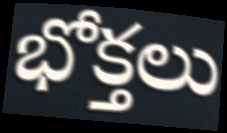
భోక్తలు